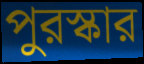
পুরস্কার